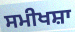
ਸਮੀਖਸ਼ਾ